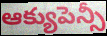
ఆక్యుపెన్సీ